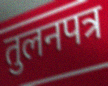
तुलनपत्र